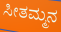
ಸೀತಮ್ಮನ